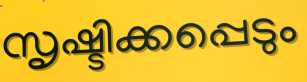
സൃഷ്ടിക്കപ്പെടും